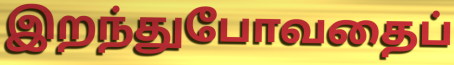
இறந்துபோவதைப்